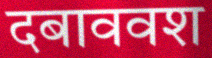
दबाववश